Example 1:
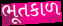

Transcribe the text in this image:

ભૂતકાળ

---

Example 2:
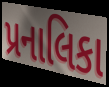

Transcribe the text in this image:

પ્રનાલિકા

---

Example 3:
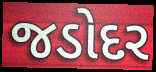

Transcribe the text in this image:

જડોદર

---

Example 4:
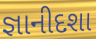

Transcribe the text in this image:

જ્ઞાનીદશા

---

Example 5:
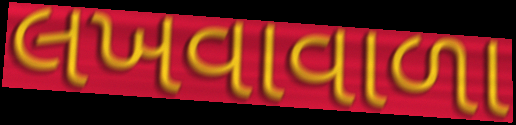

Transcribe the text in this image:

લખવાવાળા